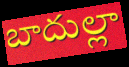
బాదుల్లా